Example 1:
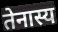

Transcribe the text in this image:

तेनास्य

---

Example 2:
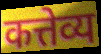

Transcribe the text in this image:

कत्तेव्य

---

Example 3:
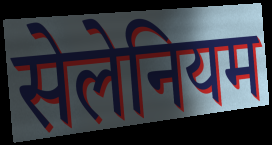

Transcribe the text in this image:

सेलेनियम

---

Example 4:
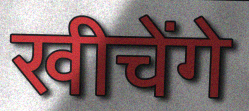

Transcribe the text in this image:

खीचेंगे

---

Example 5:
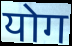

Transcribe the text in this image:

योग